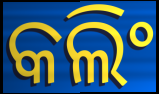
କଲିଂ